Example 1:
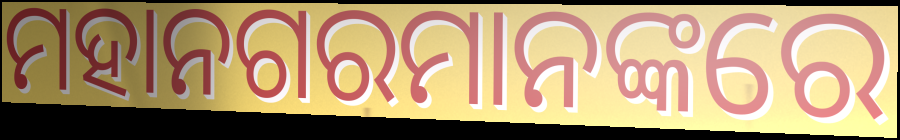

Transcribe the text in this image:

ମହାନଗରମାନଙ୍କରେ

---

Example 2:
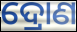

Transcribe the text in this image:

ଦ୍ରୋଣ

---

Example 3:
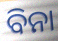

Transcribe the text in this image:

ବିନା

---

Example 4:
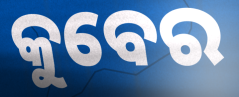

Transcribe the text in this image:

କୁବେର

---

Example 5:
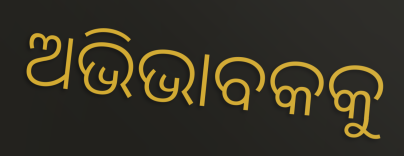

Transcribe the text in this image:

ଅଭିଭାବକକୁ